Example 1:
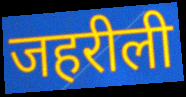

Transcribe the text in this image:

जहरीली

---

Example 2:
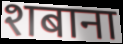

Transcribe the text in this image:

शबाना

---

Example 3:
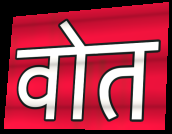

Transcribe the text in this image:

वोत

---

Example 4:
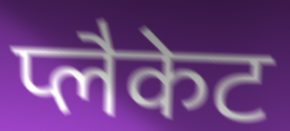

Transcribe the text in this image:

प्लैकेट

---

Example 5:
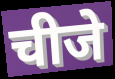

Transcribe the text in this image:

चीजे